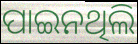
ପାଇନଥିଲି